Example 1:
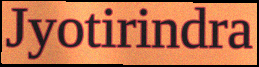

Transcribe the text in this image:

Jyotirindra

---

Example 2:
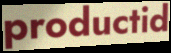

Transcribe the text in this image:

productid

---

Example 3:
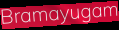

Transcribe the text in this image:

Bramayugam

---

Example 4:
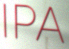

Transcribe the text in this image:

IPA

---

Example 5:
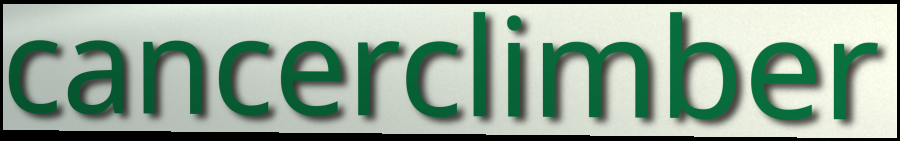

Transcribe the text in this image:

cancerclimber